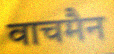
वाचमैन